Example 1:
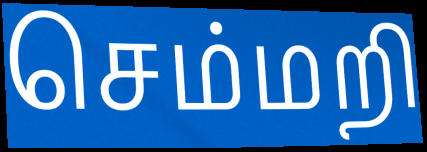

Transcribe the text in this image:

செம்மறி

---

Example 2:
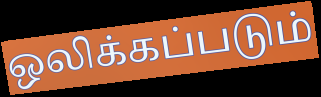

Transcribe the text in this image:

ஒலிக்கப்படும்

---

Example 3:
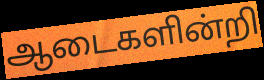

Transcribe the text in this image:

ஆடைகளின்றி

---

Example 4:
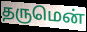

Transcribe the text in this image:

தருமென்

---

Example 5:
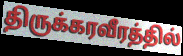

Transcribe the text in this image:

திருக்கரவீரத்தில்